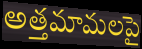
అత్తమామలపై